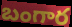
బంగార